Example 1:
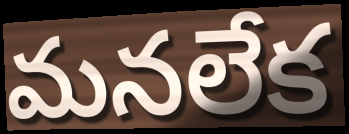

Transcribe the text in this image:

మనలేక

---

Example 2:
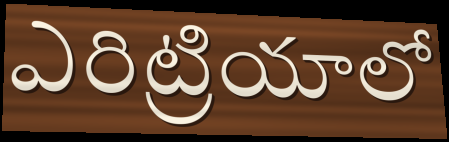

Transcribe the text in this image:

ఎరిట్రియాలో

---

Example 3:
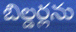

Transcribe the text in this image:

బిల్డర్లను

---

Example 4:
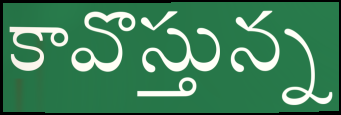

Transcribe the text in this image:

కావొస్తున్న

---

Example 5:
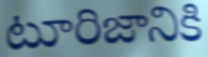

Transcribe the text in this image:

టూరిజానికి